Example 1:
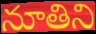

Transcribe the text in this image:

నూతిని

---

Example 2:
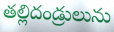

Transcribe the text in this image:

తల్లిదండ్రులును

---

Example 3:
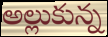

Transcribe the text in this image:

అల్లుకున్న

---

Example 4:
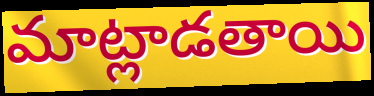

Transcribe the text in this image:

మాట్లాడతాయి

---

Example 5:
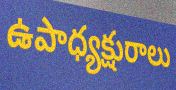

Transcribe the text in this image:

ఉపాధ్యక్షురాలు